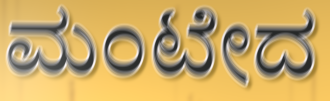
ಮಂಟೇದ